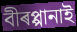
বীৰপ্পানাই